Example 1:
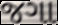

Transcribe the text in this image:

જગા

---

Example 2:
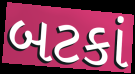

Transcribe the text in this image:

બટકાં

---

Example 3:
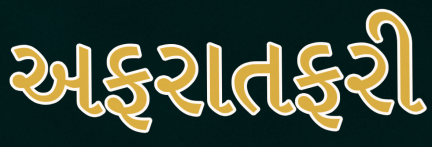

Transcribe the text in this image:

અફરાતફરી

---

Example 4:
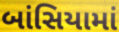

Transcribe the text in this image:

બાંસિયામાં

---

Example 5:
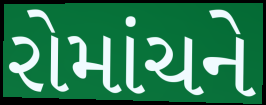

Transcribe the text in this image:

રોમાંચને